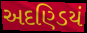
અદણ્ડિયં